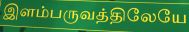
இளம்பருவத்திலேயே